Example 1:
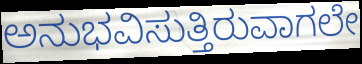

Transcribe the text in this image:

ಅನುಭವಿಸುತ್ತಿರುವಾಗಲೇ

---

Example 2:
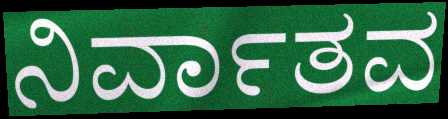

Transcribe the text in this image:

ನಿರ್ವಾತವ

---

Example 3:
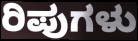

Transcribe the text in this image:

ರಿಪುಗಳು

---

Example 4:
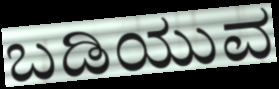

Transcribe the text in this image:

ಬಡಿಯುವ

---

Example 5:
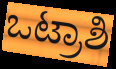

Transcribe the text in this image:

ಒಟ್ರಾಶಿ